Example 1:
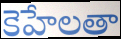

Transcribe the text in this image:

కెహేలతా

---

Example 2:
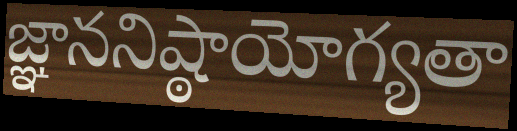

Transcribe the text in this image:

జ్ఞాననిష్ఠాయోగ్యతా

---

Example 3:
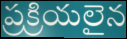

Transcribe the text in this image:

ప్రక్రియలైన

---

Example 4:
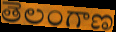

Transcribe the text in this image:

తెలంగాణ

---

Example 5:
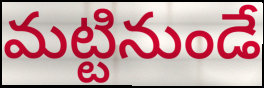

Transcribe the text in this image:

మట్టినుండే